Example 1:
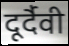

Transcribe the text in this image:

दूर्दैवी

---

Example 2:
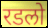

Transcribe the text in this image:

रडलो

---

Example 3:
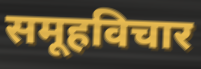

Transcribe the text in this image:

समूहविचार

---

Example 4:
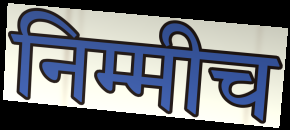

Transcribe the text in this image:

निम्मीच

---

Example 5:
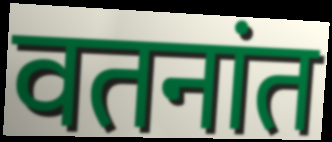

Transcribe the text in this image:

वतनांत